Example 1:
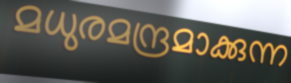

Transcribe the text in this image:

മധുരമന്ദ്രമാക്കുന്ന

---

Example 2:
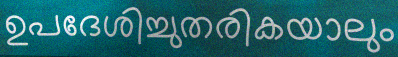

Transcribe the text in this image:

ഉപദേശിച്ചുതരികയാലും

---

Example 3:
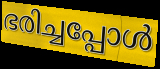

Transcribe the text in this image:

ഭരിച്ചപ്പോൾ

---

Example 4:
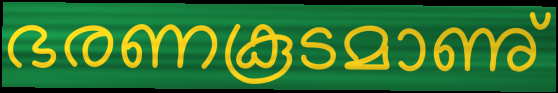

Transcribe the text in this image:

ഭരണകൂടമാണു്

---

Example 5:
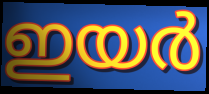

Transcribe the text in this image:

ഇയർ